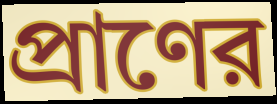
প্রাণের